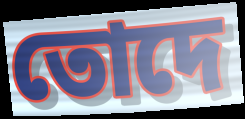
তোদে